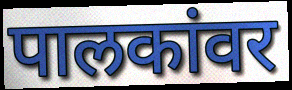
पालकांवर